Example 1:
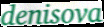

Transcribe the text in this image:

denisova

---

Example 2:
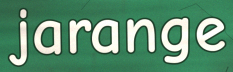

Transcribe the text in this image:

jarange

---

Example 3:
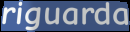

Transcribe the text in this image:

riguarda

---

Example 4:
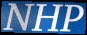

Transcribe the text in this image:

NHP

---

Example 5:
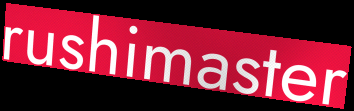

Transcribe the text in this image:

rushimaster